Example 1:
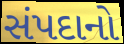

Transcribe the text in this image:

સંપદાનો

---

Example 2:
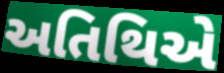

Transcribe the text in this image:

અતિથિએ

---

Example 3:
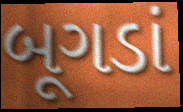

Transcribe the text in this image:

બૂગડાં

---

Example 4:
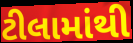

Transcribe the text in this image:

ટીલામાંથી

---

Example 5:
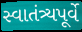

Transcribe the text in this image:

સ્વાતંત્ર્યપૂર્વે